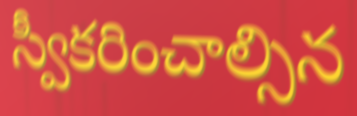
స్వీకరించాల్సిన